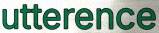
utterence